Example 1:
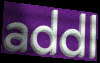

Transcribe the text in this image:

addl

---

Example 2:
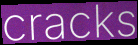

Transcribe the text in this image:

cracks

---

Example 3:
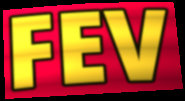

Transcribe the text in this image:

FEV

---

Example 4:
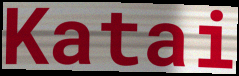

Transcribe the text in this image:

Katai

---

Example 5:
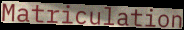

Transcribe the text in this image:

Matriculation